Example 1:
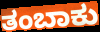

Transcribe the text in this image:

ತಂಬಾಕು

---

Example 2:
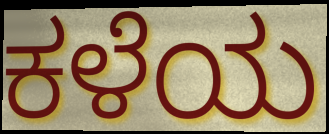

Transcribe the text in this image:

ಕಳೆಯ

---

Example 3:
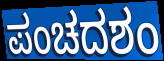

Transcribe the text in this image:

ಪಂಚದಶಂ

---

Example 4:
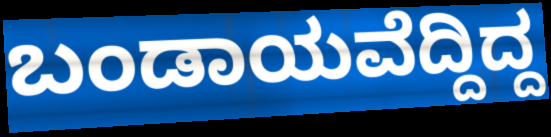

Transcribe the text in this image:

ಬಂಡಾಯವೆದ್ದಿದ್ದ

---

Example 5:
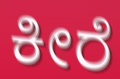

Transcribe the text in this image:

ಕೀರೆ